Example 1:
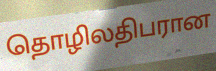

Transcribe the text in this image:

தொழிலதிபரான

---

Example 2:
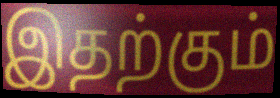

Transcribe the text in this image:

இதற்கும்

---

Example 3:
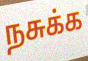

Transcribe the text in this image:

நசுக்க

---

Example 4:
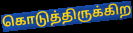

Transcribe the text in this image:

கொடுத்திருக்கிற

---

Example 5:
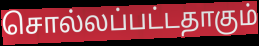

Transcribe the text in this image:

சொல்லப்பட்டதாகும்